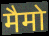
मैमो